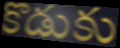
కొడుకు